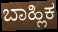
ಬಾಹ್ಲಿಕ